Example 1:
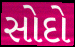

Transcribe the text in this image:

સોદો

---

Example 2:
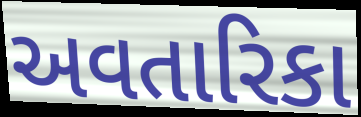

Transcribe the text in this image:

અવતારિકા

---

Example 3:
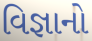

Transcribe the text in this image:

વિજ્ઞાનો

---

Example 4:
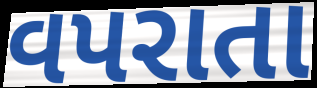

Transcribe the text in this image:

વપરાતા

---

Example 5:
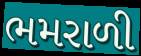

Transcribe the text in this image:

ભમરાળી